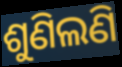
ଶୁଣିଲଣି